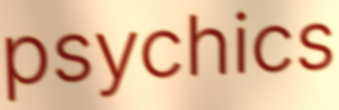
psychics